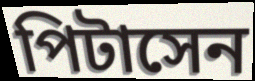
পিটাসেন